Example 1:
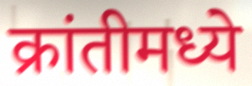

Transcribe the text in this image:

क्रांतीमध्ये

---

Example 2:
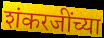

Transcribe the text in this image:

शंकरजींच्या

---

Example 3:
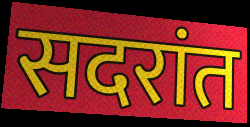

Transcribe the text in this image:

सदरांत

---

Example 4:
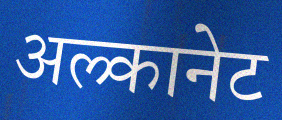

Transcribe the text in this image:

अल्कानेट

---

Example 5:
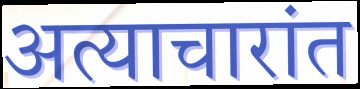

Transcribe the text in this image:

अत्याचारांत